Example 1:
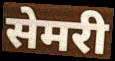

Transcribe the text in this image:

सेमरी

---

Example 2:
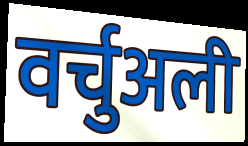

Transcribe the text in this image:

वर्चुअली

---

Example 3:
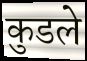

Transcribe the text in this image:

कुडले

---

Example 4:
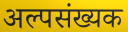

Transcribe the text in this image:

अल्पसंख्यक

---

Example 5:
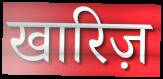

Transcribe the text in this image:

खारिज़